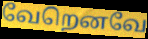
வேறெனவே